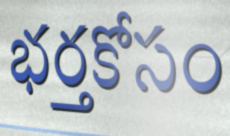
భర్తకోసం